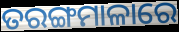
ତରଙ୍ଗମାଳାରେ